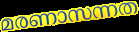
മരണാസന്നത